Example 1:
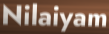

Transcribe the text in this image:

Nilaiyam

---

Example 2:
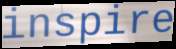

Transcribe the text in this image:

inspire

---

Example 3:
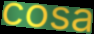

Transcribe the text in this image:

cosa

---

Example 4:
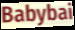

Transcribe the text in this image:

Babybai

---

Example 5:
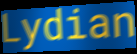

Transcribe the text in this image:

Lydian